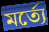
মর্ত্যে